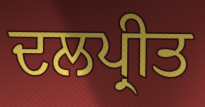
ਦਲਪ੍ਰੀਤ